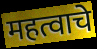
महत्वाचे